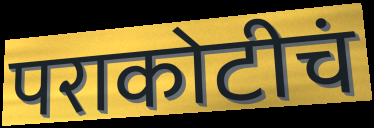
पराकोटीचं